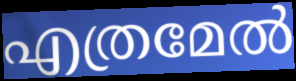
എത്രമേൽ